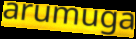
arumuga